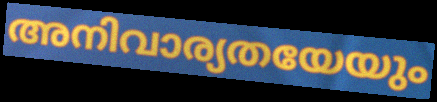
അനിവാര്യതയേയും